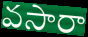
వసారా